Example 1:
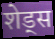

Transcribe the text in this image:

शेड्स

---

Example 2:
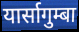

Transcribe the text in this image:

यार्सागुम्बा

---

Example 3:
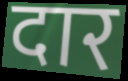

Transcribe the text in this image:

दार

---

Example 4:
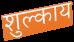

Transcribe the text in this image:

शुल्काय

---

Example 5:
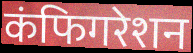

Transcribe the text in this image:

कंफिगरेशन